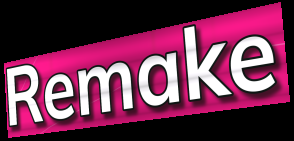
Remake